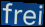
frei